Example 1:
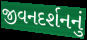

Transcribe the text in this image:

જીવનદર્શનનું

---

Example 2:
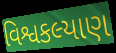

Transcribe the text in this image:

વિશ્વકલ્યાણ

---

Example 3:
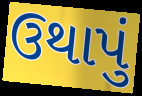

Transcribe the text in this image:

ઉથાપું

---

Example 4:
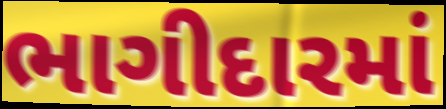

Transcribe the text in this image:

ભાગીદારમાં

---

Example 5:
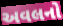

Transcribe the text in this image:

અવલનો